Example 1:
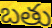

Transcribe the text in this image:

బతు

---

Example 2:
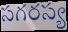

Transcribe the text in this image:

సగరస్య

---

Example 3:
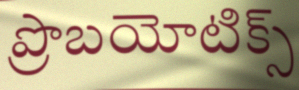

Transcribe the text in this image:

ప్రొబయోటిక్స్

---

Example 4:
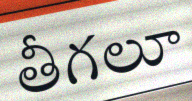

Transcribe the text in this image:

తీగలూ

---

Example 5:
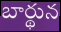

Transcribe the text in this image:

బార్థున